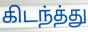
கிடந்த்து